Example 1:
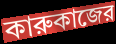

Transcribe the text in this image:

কারুকাজের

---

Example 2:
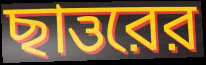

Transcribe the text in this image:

ছাত্তরের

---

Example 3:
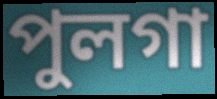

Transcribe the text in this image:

পুলগা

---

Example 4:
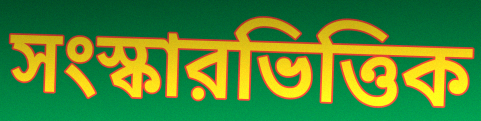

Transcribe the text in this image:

সংস্কারভিত্তিক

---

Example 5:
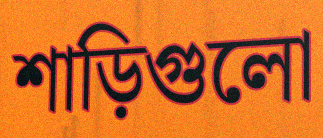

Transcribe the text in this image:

শাড়িগুলো